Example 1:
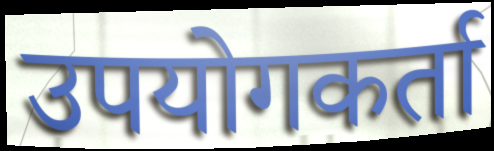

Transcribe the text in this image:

उपयोगकर्ता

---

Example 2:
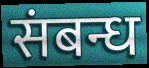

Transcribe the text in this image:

संबन्ध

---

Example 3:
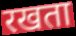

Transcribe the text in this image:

रखता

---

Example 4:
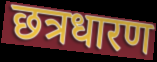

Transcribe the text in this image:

छत्रधारण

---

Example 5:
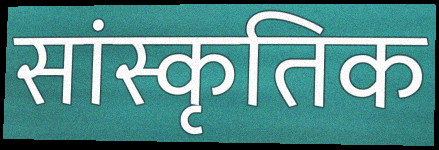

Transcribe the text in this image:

सांस्कृतिक